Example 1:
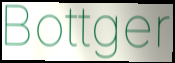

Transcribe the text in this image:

Bottger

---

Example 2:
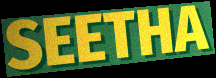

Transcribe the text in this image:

SEETHA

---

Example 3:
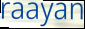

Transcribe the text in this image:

raayan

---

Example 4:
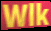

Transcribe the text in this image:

Wlk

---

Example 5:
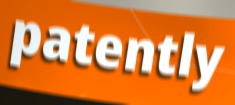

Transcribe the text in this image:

patently